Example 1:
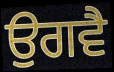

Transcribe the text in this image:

ਉਗਵੈ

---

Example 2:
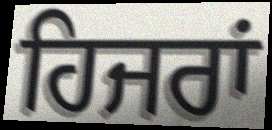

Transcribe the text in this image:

ਹਿਜਰਾਂ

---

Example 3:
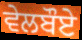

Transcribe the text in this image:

ਵੇਲਬੌਏ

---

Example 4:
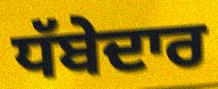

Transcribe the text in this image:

ਧੱਬੇਦਾਰ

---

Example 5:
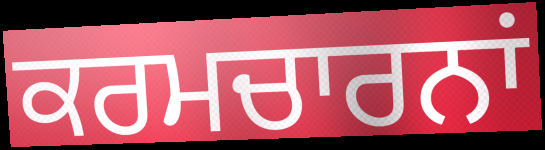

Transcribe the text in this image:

ਕਰਮਚਾਰਨਾਂ